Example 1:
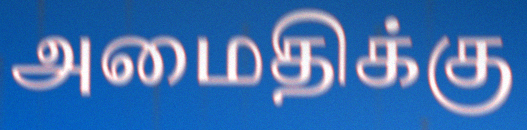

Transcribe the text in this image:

அமைதிக்கு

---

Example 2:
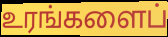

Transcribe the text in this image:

உரங்களைப்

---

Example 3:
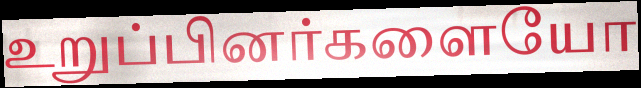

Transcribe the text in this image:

உறுப்பினர்களையோ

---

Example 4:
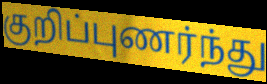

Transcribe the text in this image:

குறிப்புணர்ந்து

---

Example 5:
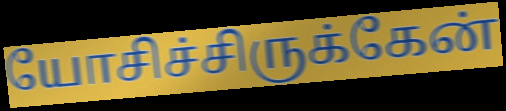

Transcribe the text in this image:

யோசிச்சிருக்கேன்